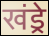
खंड्रे